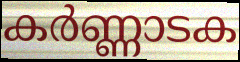
കർണ്ണാടക